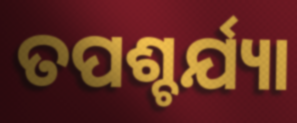
ତପଶ୍ଚର୍ଯ୍ୟା